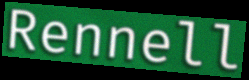
Rennell